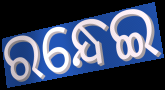
ରନ୍ଧେଇ